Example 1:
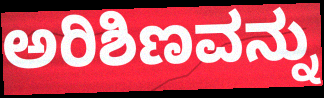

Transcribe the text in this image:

ಅರಿಶಿಣವನ್ನು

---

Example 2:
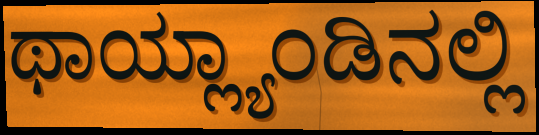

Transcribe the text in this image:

ಥಾಯ್ಲ್ಯಾಂಡಿನಲ್ಲಿ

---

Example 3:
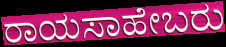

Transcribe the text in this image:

ರಾಯಸಾಹೇಬರು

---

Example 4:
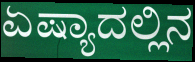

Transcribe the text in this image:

ಏಷ್ಯಾದಲ್ಲಿನ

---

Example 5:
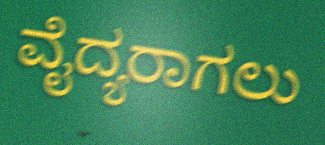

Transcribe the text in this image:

ವೈದ್ಯರಾಗಲು